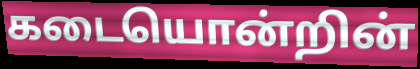
கடையொன்றின்